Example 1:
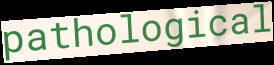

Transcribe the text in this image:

pathological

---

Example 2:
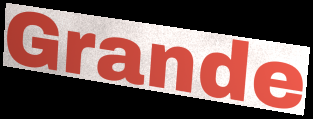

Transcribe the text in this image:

Grande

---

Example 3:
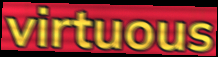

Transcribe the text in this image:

virtuous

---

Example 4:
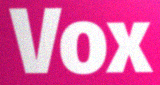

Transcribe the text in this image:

Vox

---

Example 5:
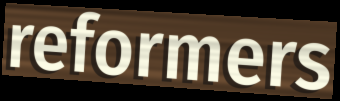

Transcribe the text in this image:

reformers